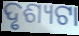
ଦୃଶ୍ୟଟା